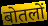
बोतलों